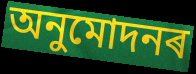
অনুমোদনৰ